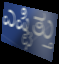
ಎಷ್ಟಿತ್ತು